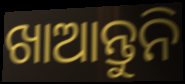
ଖାଆନ୍ତୁନି